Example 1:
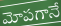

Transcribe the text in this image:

మోపగానే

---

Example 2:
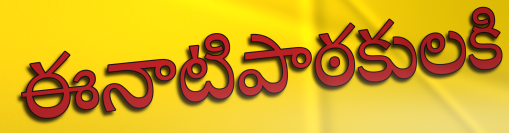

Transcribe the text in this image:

ఈనాటిపాఠకులకి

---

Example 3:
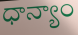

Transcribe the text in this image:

ధాన్యాం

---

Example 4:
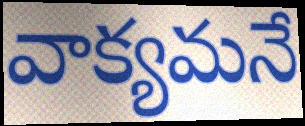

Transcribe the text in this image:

వాక్యమనే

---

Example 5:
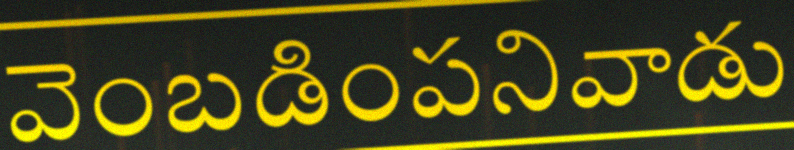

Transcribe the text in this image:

వెంబడింపనివాడు